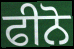
ਫੀਨੋ